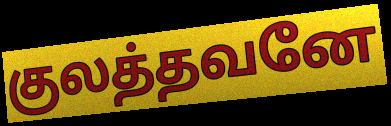
குலத்தவனே